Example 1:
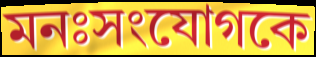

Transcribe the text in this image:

মনঃসংযোগকে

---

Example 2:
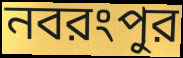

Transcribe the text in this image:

নবরংপুর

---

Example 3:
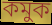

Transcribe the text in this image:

কমুক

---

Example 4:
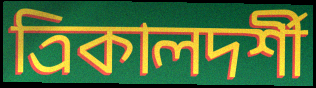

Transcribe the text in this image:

ত্রিকালদর্শী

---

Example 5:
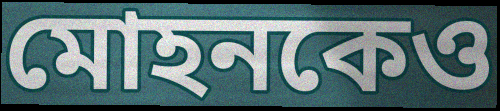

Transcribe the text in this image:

মোহনকেও